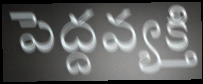
పెద్దవ్యక్తి